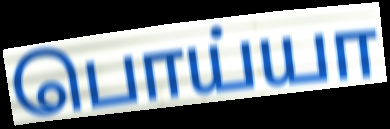
பொய்யா